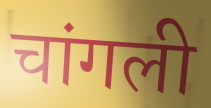
चांगली